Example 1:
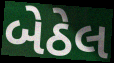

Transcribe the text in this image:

બેઠેલ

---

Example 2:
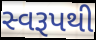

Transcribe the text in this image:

સ્વરૂપથી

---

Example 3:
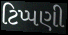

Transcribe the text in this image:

ટિપ્પણી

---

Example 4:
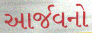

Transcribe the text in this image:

આર્જવનો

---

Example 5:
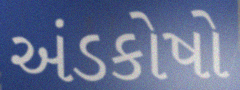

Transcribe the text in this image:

અંડકોષો